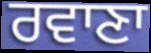
ਰਵਾਣਾ